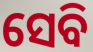
ସେବି